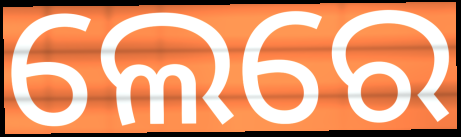
ଲେରେ